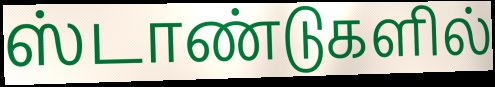
ஸ்டாண்டுகளில்